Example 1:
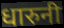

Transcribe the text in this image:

धारुनी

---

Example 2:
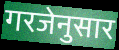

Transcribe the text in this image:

गरजेनुसार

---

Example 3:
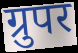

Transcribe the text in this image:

ग्रुपर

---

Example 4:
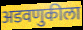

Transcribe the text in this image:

अडवणुकीला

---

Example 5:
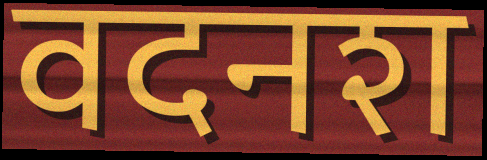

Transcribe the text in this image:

वदनश